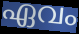
ഏവം